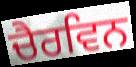
ਚੈਰਵਿਨ